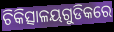
ଚିକିତ୍ସାଳୟଗୁଡିକରେ